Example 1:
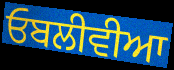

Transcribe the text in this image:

ਓਬਲੀਵੀਆ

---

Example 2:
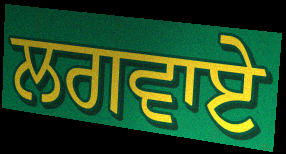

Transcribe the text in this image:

ਲਗਵਾਏ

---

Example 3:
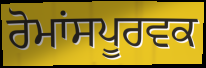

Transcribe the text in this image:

ਰੋਮਾਂਸਪੂਰਵਕ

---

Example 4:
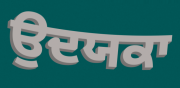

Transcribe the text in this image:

ਉਦਯਕਾ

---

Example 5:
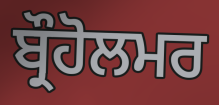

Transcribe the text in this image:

ਬ੍ਰੌਹੋਲਮਰ